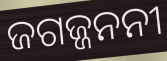
ଜଗଜ୍ଜନନୀ